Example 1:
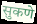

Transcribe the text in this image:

सुकणे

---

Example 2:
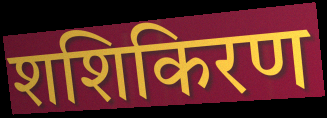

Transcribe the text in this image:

शशिकिरण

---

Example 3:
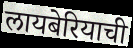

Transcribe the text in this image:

लायबेरियाची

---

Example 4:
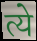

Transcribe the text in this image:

त्ये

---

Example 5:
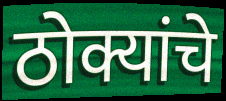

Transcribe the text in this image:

ठोक्यांचे